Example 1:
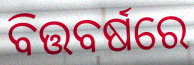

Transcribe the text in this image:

ବିତ୍ତବର୍ଷରେ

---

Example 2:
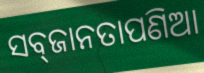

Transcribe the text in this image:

ସବ୍‌ଜାନତାପଣିଆ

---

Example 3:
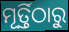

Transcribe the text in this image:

ମୂର୍ତ୍ତିଠାରୁ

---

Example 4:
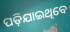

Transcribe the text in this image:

ପଡ଼ିଯାଇଥିବେ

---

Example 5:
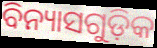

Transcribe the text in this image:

ବିନ୍ୟାସଗୁଡ଼ିକ